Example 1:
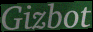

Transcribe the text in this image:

Gizbot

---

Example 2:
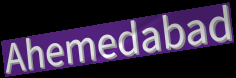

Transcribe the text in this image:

Ahemedabad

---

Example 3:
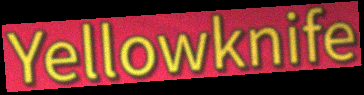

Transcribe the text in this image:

Yellowknife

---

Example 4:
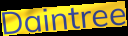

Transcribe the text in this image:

Daintree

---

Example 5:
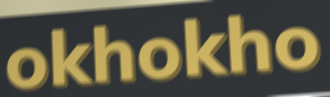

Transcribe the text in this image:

okhokho